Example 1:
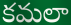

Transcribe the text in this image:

కమలా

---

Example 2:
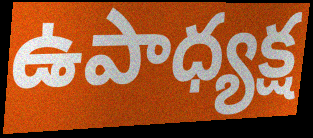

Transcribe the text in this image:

ఉపాధ్యక్ష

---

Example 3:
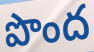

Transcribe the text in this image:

పొంద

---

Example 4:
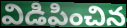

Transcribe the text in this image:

విడిపించిన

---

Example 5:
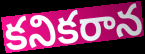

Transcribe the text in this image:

కనికరాన